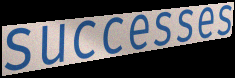
successes